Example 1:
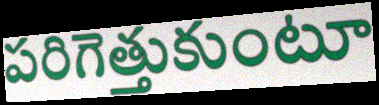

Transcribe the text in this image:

పరిగెత్తుకుంటూ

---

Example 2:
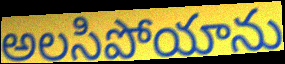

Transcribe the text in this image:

అలసిపోయాను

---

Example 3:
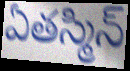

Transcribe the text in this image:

ఏతస్మిన్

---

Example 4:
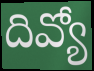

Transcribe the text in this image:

దివ్యో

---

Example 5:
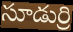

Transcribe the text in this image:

సూడుర్రి